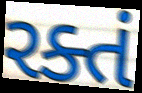
રક્તં